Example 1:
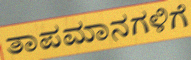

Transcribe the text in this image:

ತಾಪಮಾನಗಳಿಗೆ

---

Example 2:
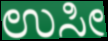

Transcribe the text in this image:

ಉಸೀ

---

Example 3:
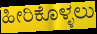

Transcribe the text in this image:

ಹೀರಿಕೊಳ್ಳಲು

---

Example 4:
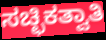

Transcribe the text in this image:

ಸಚ್ಛಿಕತ್ವಾತಿ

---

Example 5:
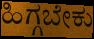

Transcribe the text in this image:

ಹಿಗ್ಗಬೇಕು